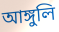
আঙ্গুলি